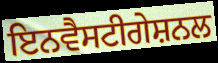
ਇਨਵੈਸਟੀਗੇਸ਼ਨਲ